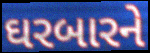
ઘરબારને